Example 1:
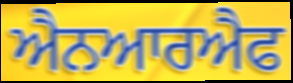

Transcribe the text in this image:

ਐਨਆਰਐਫ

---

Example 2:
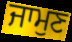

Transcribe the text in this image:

ਜਾਮੁਣ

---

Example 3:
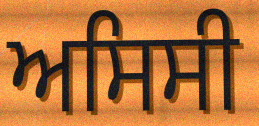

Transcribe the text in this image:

ਅਸਿਸੀ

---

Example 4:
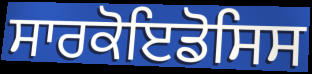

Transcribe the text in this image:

ਸਾਰਕੋਇਡੋਸਿਸ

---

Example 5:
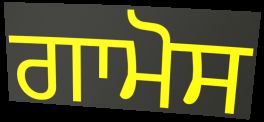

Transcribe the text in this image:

ਗਾਮੋਸ